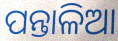
ପନ୍ତାଳିଆ